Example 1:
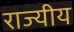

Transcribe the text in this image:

राज्यीय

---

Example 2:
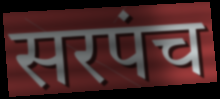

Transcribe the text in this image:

सरपंच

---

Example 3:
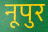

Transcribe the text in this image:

नूपुर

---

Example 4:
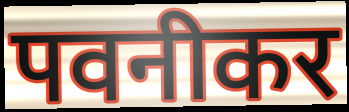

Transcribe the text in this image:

पवनीकर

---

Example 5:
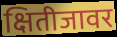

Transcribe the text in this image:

क्षितीजावर